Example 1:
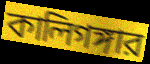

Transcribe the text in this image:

কালিগঙ্গার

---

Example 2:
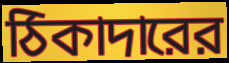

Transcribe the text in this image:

ঠিকাদারের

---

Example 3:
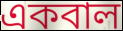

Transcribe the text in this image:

একবাল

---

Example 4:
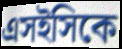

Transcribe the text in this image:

এসইসিকে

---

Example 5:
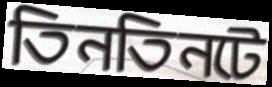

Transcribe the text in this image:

তিনতিনটে